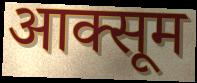
आक्सूम